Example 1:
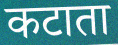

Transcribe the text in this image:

कटाता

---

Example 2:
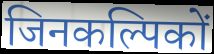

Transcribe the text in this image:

जिनकल्पिकों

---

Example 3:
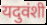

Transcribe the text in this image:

यदुवंशी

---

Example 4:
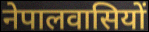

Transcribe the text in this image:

नेपालवासियों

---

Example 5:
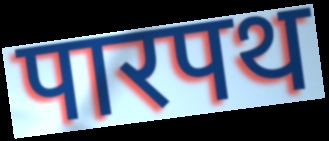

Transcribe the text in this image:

पारपथ